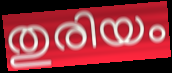
തുരിയം